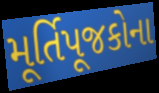
મૂર્તિપૂજકોના